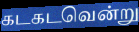
கடகடவென்று